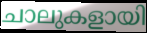
ചാലുകളായി